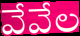
వేవేల